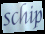
schip